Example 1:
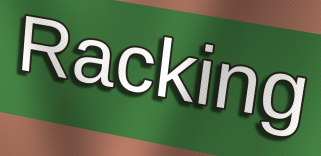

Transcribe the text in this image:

Racking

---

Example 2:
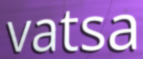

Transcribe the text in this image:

vatsa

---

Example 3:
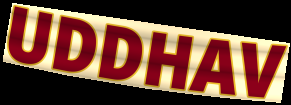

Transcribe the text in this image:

UDDHAV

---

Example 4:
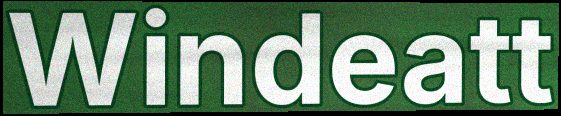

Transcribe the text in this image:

Windeatt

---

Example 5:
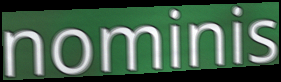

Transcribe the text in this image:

nominis